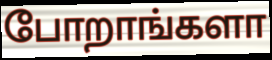
போறாங்களா